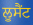
ਲੂਸੈਂਟ